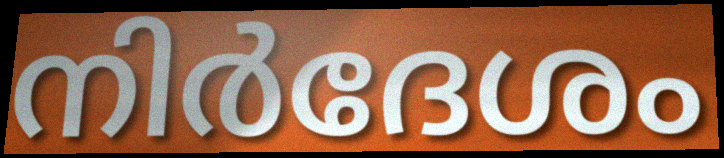
നിർദേശം